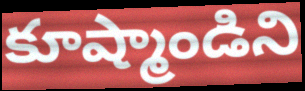
కూష్మాండిని